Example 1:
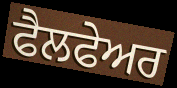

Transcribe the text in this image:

ਫੈਲਫੇਅਰ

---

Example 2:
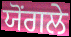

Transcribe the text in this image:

ਯੋਂਗਲੇ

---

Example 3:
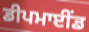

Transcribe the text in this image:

ਡੀਪਮਾਈਂਡ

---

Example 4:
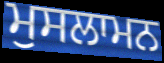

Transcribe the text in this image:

ਮੁਸਲਾਮਨ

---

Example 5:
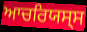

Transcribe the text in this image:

ਆਚਰਿਯਸ੍ਸ